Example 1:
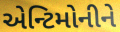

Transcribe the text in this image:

એન્ટિમોનીને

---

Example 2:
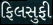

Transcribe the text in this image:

ફિલસુફી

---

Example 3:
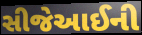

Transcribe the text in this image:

સીજેઆઈની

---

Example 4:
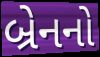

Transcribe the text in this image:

બ્રેનનો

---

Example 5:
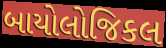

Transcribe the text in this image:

બાયોલોજિકલ